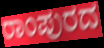
ರಾಂಪುರದ